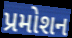
પ્રમોશન